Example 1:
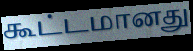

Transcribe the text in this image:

கூட்டமானது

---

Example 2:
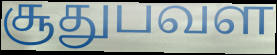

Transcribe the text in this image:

சூதுபவள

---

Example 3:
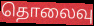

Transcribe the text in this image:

தொலைவு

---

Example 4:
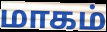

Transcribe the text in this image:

மாகம்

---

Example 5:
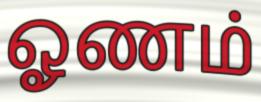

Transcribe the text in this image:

ஓணம்